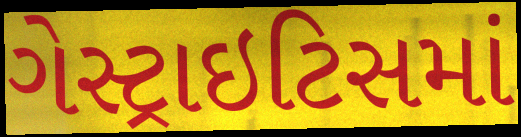
ગેસ્ટ્રાઇટિસમાં